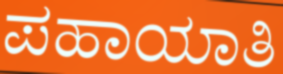
ಪಹಾಯಾತಿ